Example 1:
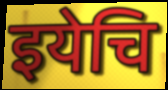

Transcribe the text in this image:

इयेचि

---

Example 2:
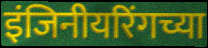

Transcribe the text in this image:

इंजिनीयरिंगच्या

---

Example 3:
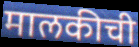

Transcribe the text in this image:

मालकीची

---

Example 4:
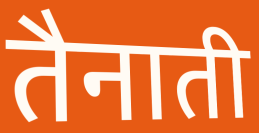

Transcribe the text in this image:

तैनाती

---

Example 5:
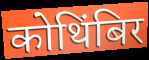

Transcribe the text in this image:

कोथिंबिर